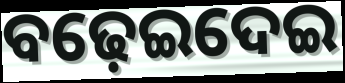
ବଢ଼େଇଦେଇ